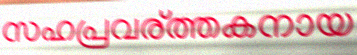
സഹപ്രവര്ത്തകനായ